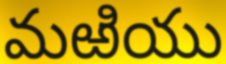
మఱియు